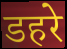
डहरे